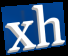
xh